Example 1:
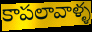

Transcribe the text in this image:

కాపలావాళ్ళ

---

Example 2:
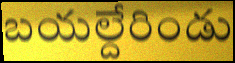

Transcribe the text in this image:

బయల్దేరిండు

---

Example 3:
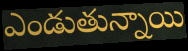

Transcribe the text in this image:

ఎండుతున్నాయి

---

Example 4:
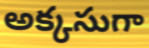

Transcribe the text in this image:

అక్కసుగా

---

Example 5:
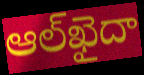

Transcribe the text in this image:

ఆల్‌ఖైదా